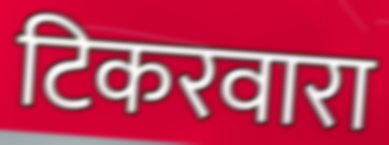
टिकरवारा